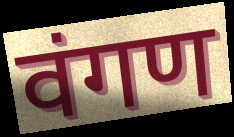
वंगण